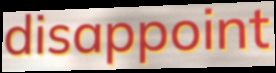
disappoint